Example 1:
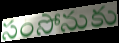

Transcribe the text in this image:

సంసోనుకు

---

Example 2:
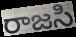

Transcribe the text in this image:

రాజసి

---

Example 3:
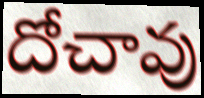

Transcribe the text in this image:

దోచావు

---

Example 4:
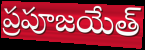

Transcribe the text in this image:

ప్రపూజయేత్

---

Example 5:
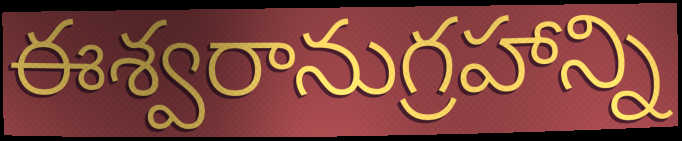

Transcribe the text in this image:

ఈశ్వరానుగ్రహాన్ని